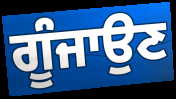
ਗੂੰਜਾਉਣ